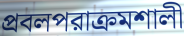
প্রবলপরাক্রমশালী